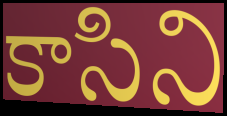
కాసిని